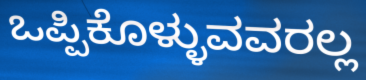
ಒಪ್ಪಿಕೊಳ್ಳುವವರಲ್ಲ